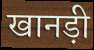
खानड़ी